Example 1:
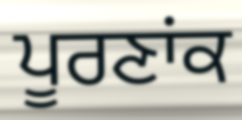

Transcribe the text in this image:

ਪੂਰਣਾਂਕ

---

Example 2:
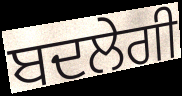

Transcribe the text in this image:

ਬਦਲੇਗੀ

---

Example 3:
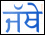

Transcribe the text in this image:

ਜੱਥੇ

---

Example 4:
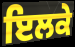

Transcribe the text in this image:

ਇਲਕੇ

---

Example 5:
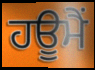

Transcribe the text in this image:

ਹਊਮੈਂ